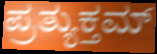
ಪ್ರತ್ಯುಕ್ತಮ್